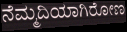
ನೆಮ್ಮದಿಯಾಗಿರೋಣ